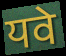
यवे